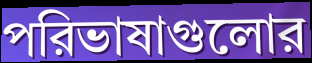
পরিভাষাগুলোর